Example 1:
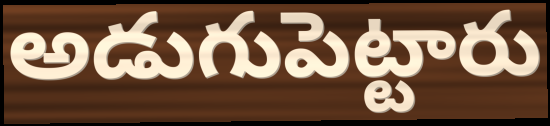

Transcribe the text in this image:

అడుగుపెట్టారు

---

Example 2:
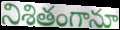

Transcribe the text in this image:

నిశితంగానూ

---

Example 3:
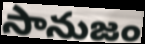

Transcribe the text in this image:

సానుజం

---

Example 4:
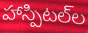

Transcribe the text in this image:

హాస్పిటల్‌ల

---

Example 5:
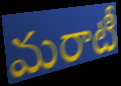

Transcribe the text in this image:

మరాటీ